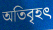
অতিবৃহৎ